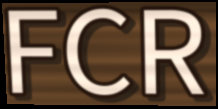
FCR